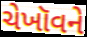
ચેખૉવને